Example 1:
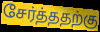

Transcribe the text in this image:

சேர்த்ததற்கு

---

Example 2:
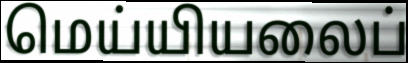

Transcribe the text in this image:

மெய்யியலைப்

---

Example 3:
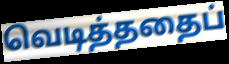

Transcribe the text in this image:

வெடித்ததைப்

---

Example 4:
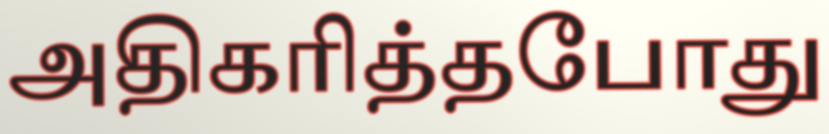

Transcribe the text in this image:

அதிகரித்தபோது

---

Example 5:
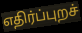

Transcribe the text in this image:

எதிர்ப்புறச்